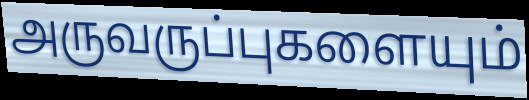
அருவருப்புகளையும்